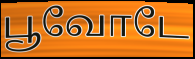
பூவோடே